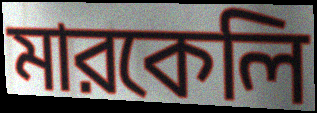
মারকেলি